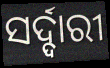
ସର୍ଦ୍ଦାରୀ